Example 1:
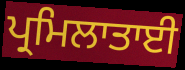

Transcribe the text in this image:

ਪ੍ਰਮਿਲਾਤਾਈ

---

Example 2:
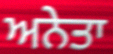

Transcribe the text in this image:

ਅਨੇਤਾ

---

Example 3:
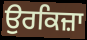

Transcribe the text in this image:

ਉਰਕਿਜ਼ਾ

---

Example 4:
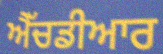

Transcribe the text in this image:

ਐੱਚਡੀਆਰ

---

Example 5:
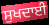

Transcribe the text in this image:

ਸੁਖਦਾਈ